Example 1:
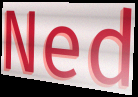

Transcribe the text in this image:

Ned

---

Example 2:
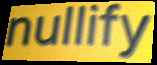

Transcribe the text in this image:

nullify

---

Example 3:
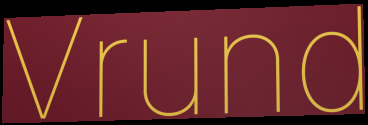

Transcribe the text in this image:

Vrund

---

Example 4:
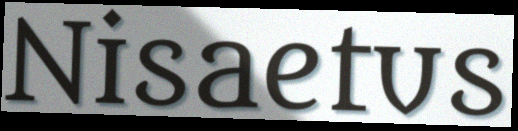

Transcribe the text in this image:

Nisaetus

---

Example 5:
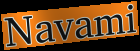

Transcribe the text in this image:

Navami